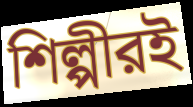
শিল্পীরই